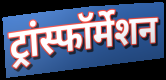
ट्रांस्फॉर्मेशन